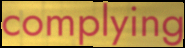
complying